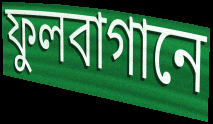
ফুলবাগানে